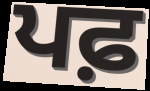
ਪਫ਼